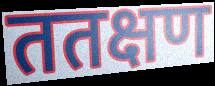
ततक्षण